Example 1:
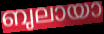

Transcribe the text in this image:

ബുലായാ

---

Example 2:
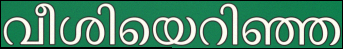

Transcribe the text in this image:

വീശിയെറിഞ്ഞ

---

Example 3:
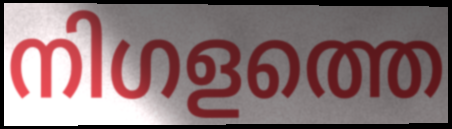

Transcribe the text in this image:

നിഗളത്തെ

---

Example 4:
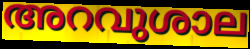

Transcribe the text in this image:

അറവുശാല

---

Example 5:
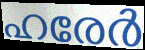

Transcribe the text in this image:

ഹരേർ